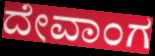
ದೇವಾಂಗ